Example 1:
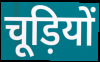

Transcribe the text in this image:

चूड़ियों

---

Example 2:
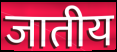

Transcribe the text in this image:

जातीय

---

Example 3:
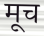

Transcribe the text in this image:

मूच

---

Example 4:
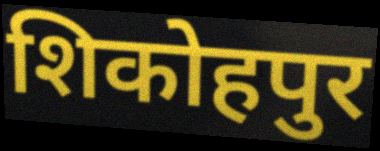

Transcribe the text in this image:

शिकोहपुर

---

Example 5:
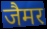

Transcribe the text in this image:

जैमर